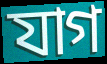
যাগ